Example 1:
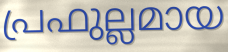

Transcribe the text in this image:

പ്രഫുല്ലമായ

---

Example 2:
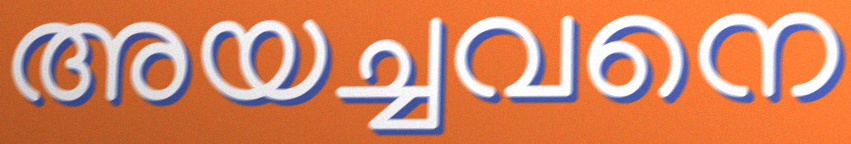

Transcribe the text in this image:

അയച്ചവനെ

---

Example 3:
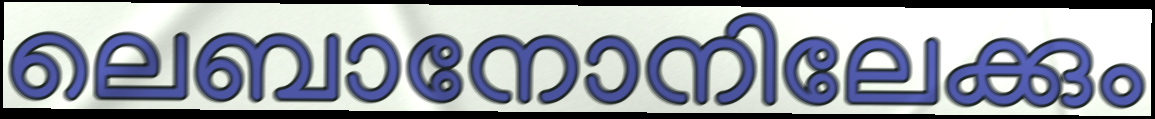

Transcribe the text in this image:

ലെബാനോനിലേക്കും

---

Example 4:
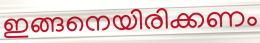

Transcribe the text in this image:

ഇങ്ങനെയിരിക്കണം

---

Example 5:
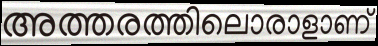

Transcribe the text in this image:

അത്തരത്തിലൊരാളാണ്